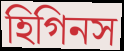
হিগিনস